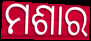
ମଶାର